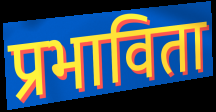
प्रभाविता